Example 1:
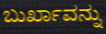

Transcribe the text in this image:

ಬುರ್ಖಾವನ್ನು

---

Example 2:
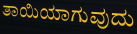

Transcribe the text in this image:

ತಾಯಿಯಾಗುವುದು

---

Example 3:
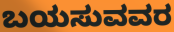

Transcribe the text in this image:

ಬಯಸುವವರ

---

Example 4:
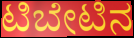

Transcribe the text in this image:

ಟಿಬೇಟಿನ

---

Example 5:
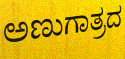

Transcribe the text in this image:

ಅಣುಗಾತ್ರದ